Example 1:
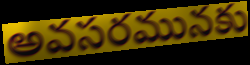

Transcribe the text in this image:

అవసరమునకు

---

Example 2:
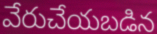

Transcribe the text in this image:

వేరుచేయబడిన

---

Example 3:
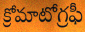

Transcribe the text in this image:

క్రోమాటోగ్రఫీ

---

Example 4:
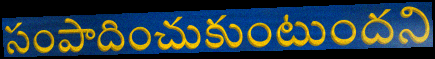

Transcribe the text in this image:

సంపాదించుకుంటుందని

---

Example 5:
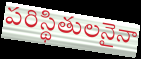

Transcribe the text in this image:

పరిస్థితులనైనా